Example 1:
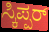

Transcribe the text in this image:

ಸ್ಕಿಪ್ಪರ್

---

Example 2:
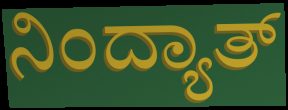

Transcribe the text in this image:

ನಿಂದ್ಯಾತ್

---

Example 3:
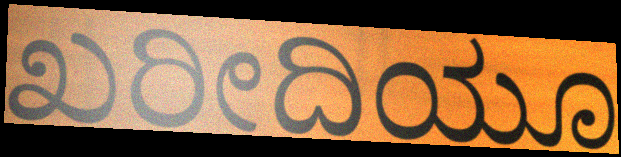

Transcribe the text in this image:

ಖರೀದಿಯೂ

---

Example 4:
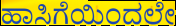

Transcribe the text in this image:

ಹಾಸಿಗೆಯಿಂದಲೇ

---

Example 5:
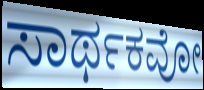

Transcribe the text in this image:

ಸಾರ್ಥಕವೋ